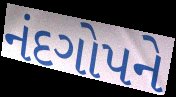
નંદગોપને